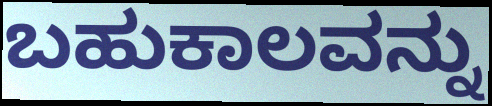
ಬಹುಕಾಲವನ್ನು